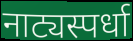
नाट्यस्पर्धा